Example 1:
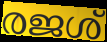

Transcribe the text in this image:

രജശ്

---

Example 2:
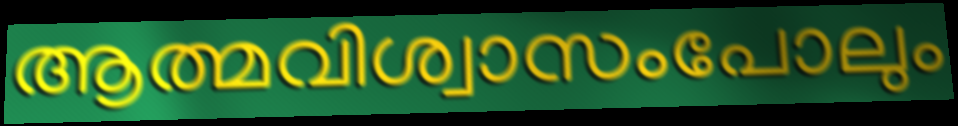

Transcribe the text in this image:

ആത്മവിശ്വാസംപോലും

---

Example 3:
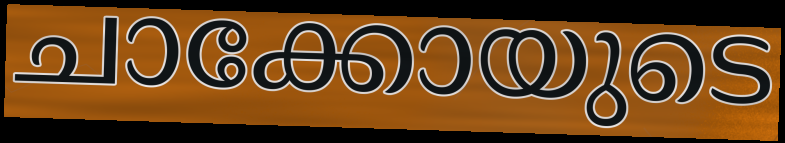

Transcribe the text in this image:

ചാക്കോയുടെ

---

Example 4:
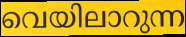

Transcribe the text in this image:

വെയിലാറുന്ന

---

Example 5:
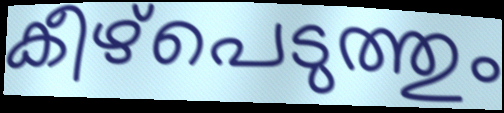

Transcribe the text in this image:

കീഴ്പെടുത്തും